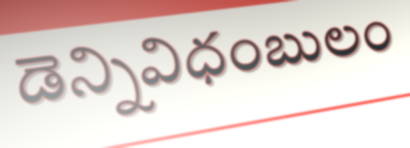
డెన్నివిధంబులం